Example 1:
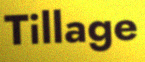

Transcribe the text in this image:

Tillage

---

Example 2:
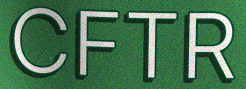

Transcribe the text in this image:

CFTR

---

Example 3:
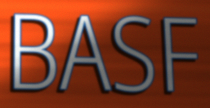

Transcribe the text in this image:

BASF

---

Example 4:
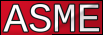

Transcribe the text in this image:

ASME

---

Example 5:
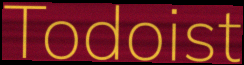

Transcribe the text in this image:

Todoist